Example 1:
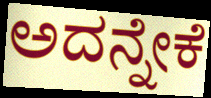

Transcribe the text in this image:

ಅದನ್ನೇಕೆ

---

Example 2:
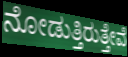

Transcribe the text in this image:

ನೋಡುತ್ತಿರುತ್ತೇವೆ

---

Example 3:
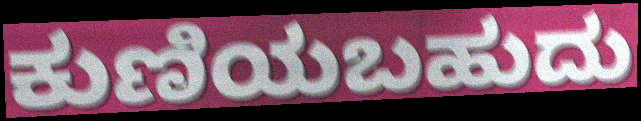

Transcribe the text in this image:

ಕುಣಿಯಬಹುದು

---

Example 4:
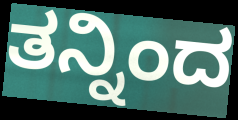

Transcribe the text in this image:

ತನ್ನಿಂದ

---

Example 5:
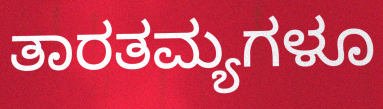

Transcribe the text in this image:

ತಾರತಮ್ಯಗಳೂ